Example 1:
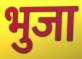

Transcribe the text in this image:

भुजा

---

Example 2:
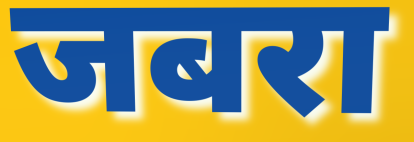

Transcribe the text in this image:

जबरा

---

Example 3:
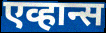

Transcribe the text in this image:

एव्हान्स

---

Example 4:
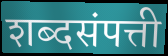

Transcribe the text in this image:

शब्दसंपत्ती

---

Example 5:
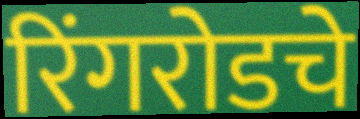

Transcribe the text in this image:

रिंगरोडचे